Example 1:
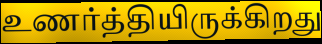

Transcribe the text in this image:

உணர்த்தியிருக்கிறது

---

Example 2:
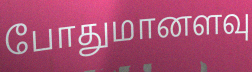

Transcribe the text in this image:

போதுமானளவு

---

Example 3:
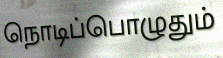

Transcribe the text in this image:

நொடிப்பொழுதும்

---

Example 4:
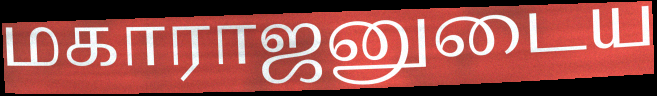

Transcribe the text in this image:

மகாராஜனுடைய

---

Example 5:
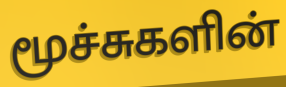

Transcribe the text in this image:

மூச்சுகளின்